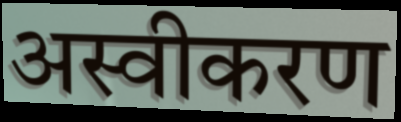
अस्वीकरण